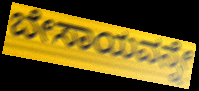
ಬೇಸಾಯವನ್ನೇ